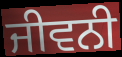
ਜੀਵਨੀ